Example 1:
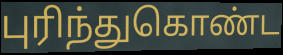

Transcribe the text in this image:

புரிந்துகொண்ட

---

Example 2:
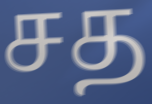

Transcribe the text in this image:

சத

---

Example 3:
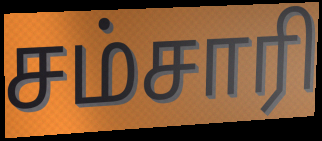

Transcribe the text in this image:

சம்சாரி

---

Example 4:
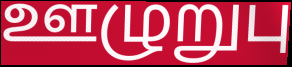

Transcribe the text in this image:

ஊழுறுபு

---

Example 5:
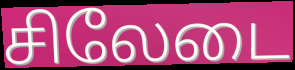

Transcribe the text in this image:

சிலேடை